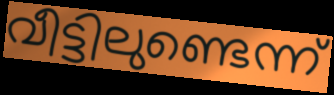
വീട്ടിലുണ്ടെന്ന്